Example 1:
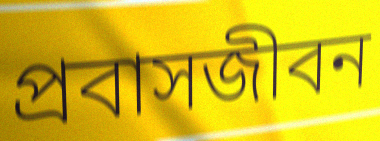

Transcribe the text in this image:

প্রবাসজীবন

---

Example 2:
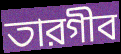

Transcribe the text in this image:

তারগীব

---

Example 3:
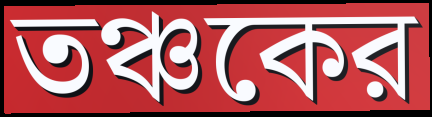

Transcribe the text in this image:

তঞ্চকের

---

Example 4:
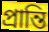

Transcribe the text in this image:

প্রান্তি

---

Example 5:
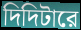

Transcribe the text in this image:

দিদিটারে